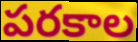
పరకాల